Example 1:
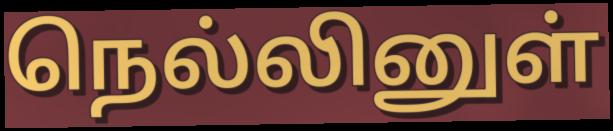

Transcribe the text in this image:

நெல்லினுள்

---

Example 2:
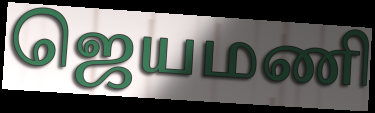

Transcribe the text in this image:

ஜெயமணி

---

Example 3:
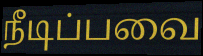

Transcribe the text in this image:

நீடிப்பவை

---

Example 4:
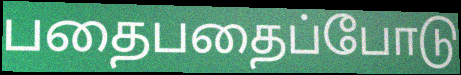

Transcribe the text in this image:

பதைபதைப்போடு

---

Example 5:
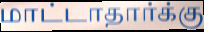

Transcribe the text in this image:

மாட்டாதார்க்கு